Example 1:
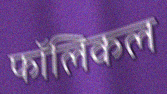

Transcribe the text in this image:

फॉलिकल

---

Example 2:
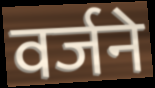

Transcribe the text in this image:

वर्जने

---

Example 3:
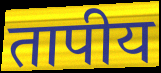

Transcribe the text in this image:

तापीय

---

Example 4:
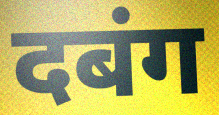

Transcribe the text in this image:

दबंग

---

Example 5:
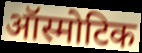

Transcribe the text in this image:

ऑस्मोटिक